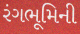
રંગભૂમિની